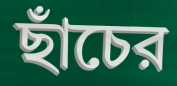
ছাঁচের